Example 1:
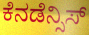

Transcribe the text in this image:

ಕೆನಡೆನ್ಸಿಸ್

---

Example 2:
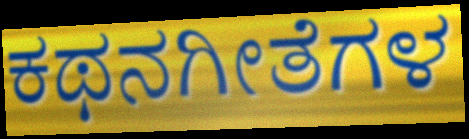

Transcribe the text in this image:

ಕಥನಗೀತೆಗಳ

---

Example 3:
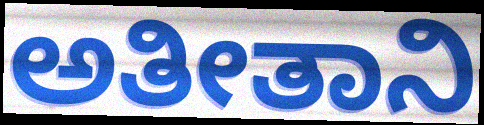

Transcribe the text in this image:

ಅತೀತಾನಿ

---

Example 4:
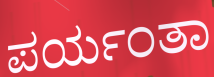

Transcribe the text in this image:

ಪರ್ಯಂತಾ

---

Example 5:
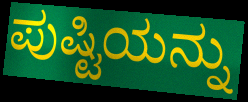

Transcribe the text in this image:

ಪುಷ್ಟಿಯನ್ನು